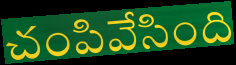
చంపివేసింది